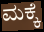
ಮಕ್ಕೆ